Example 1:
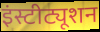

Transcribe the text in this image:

इंस्‍टीट्यूशन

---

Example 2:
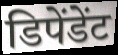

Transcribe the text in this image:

डिपेंडेंट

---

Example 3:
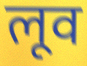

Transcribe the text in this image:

लूव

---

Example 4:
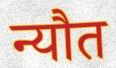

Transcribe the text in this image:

न्यौत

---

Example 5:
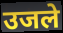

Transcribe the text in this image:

उजले